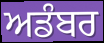
ਅਡੰਬਰ